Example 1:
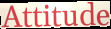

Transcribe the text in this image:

Attitude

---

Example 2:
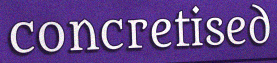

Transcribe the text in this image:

concretised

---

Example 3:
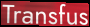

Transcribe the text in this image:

Transfus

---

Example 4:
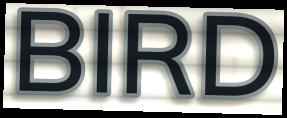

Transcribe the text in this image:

BIRD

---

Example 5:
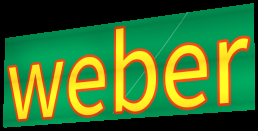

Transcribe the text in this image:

weber